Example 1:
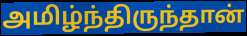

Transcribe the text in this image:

அமிழ்ந்திருந்தான்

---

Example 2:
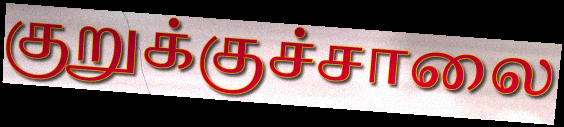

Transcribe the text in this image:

குறுக்குச்சாலை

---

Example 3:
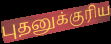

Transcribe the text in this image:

புதனுக்குரிய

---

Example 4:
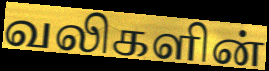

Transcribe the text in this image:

வலிகளின்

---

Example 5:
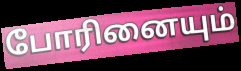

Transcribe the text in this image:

போரினையும்